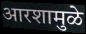
आरशामुळे